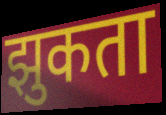
झुकता